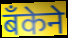
बँकेने